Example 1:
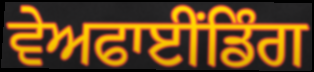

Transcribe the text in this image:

ਵੇਅਫਾਈਂਡਿੰਗ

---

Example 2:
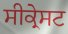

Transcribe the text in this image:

ਸੀਕ੍ਰੇਸਟ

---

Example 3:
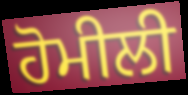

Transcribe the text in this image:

ਹੋਮੀਲੀ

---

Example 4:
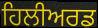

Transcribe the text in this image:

ਹਿਲੀਅਰਡ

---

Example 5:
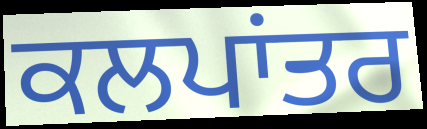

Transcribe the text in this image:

ਕਲਪਾਂਤਰ